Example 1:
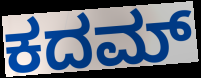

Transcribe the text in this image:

ಕದಮ್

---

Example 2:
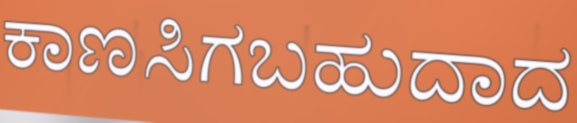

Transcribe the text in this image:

ಕಾಣಸಿಗಬಹುದಾದ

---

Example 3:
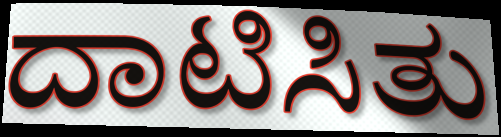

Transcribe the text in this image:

ದಾಟಿಸಿತು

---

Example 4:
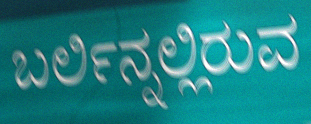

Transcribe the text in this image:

ಬರ್ಲಿನ್ನಲ್ಲಿರುವ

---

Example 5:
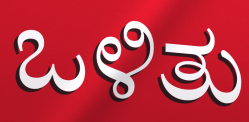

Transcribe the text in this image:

ಒಳಿತು